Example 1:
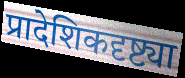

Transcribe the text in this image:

प्रादेशिकदृष्ट्या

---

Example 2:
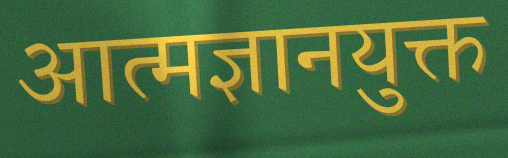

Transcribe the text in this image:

आत्मज्ञानयुक्त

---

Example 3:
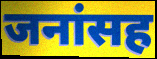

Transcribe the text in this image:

जनांसह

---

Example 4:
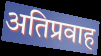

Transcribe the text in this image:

अतिप्रवाह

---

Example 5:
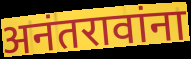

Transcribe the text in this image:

अनंतरावांना